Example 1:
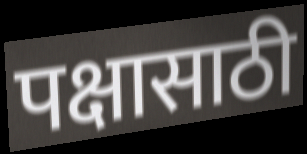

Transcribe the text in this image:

पक्षासाठी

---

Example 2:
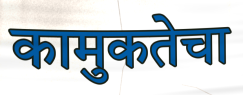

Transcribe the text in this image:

कामुकतेचा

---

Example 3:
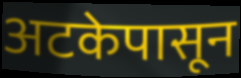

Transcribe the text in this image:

अटकेपासून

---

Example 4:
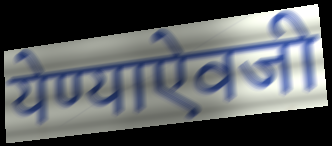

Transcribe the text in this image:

येण्याऐवजी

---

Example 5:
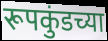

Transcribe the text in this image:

रूपकुंडच्या